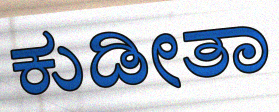
ಕುಡೀತಾ